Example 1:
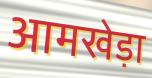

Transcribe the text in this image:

आमखेड़ा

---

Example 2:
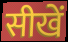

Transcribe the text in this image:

सीखें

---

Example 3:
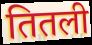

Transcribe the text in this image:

तितली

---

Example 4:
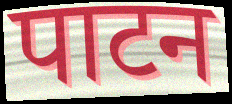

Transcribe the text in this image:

पाटन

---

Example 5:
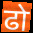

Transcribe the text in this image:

ढो